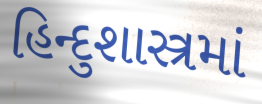
હિન્દુશાસ્ત્રમાં